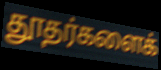
தூதர்களைக்